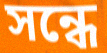
সন্ধে